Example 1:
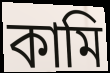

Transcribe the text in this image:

কামি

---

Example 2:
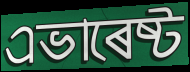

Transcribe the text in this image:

এভাৰেষ্ট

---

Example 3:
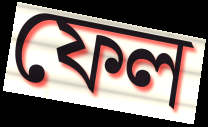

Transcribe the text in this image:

ফেল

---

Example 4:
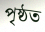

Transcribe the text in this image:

পৃষ্ঠত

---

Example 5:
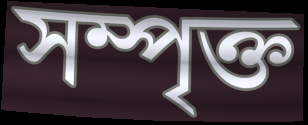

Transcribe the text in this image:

সম্পৃক্ত